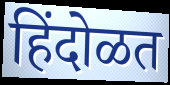
हिंदोळत